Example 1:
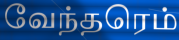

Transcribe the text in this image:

வேந்தரெம்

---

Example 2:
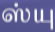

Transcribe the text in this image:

ஸ்யு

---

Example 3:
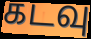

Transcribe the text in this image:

கடவு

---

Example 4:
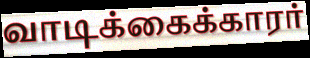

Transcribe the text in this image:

வாடிக்கைக்காரர்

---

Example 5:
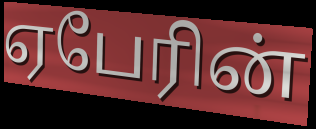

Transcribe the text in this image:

ஏபேரின்